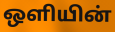
ஒளியின்